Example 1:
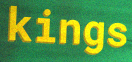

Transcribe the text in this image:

kings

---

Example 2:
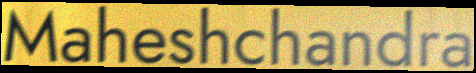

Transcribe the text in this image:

Maheshchandra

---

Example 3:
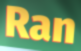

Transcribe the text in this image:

Ran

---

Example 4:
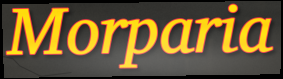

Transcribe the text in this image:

Morparia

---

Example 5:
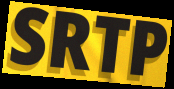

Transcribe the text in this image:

SRTP